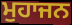
ਮੁਹਾਜਨ